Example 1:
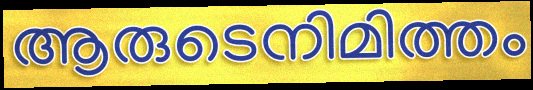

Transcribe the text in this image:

ആരുടെനിമിത്തം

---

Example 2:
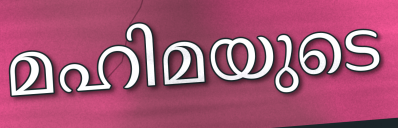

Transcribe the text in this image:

മഹിമയുടെ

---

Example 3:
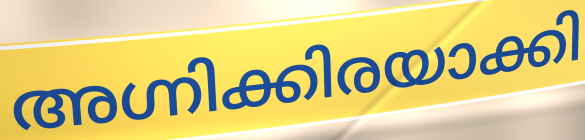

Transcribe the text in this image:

അഗ്നിക്കിരയാക്കി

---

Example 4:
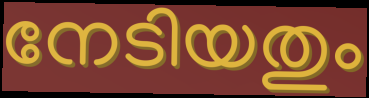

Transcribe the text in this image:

നേടിയതും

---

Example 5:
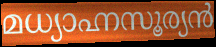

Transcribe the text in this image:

മധ്യാഹ്നസൂര്യൻ